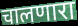
चालणारा